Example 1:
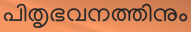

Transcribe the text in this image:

പിതൃഭവനത്തിനും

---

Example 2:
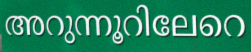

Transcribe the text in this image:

അറുന്നൂറിലേറെ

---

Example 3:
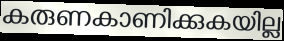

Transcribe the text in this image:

കരുണകാണിക്കുകയില്ല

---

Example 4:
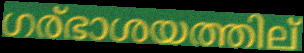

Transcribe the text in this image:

ഗര്ഭാശയത്തില്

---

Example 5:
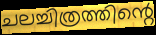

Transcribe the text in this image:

ചലച്ചിത്രത്തിന്റെ